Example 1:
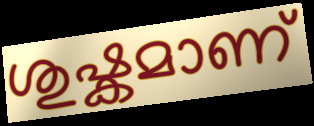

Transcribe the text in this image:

ശുഷ്കമാണ്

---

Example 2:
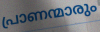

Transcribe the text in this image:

പ്രാണന്മാരും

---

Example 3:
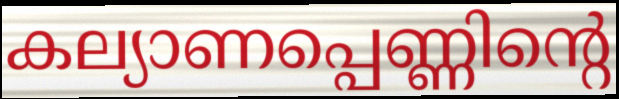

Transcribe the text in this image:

കല്യാണപ്പെണ്ണിന്റെ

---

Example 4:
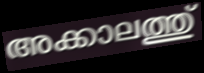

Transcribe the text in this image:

അക്കാലത്തു്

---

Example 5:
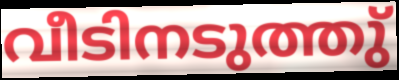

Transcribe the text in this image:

വീടിനടുത്തു്